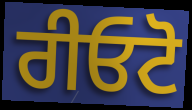
ਰੀਓਟੋ